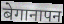
बेगानापन